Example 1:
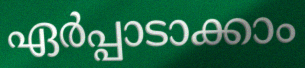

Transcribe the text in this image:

ഏർപ്പാടാക്കാം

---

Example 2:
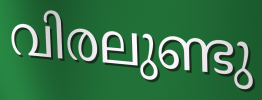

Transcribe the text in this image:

വിരലുണ്ടു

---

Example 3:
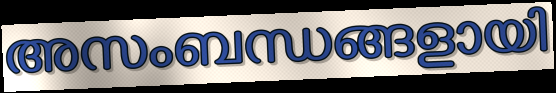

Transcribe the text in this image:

അസംബന്ധങ്ങളായി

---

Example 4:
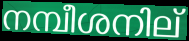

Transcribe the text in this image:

നമ്പീശനില്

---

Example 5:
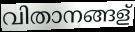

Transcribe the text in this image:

വിതാനങ്ങള്